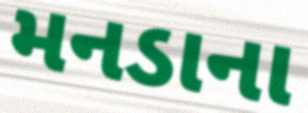
મનડાના